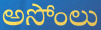
అసోంలు